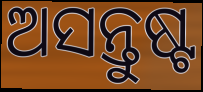
ଅସନ୍ତୁଷ୍ଟ